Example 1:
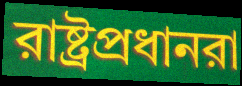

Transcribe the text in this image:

রাষ্ট্রপ্রধানরা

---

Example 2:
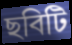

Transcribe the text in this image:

ছবিটি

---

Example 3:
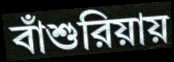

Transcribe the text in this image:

বাঁশুরিয়ায়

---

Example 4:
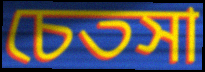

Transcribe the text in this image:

চেতসা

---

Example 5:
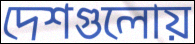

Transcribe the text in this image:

দেশগুলোয়